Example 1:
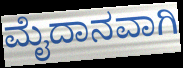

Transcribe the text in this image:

ಮೈದಾನವಾಗಿ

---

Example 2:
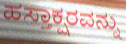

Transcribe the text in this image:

ಹಸ್ತಾಕ್ಷರವನ್ನು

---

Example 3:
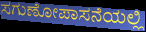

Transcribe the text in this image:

ಸಗುಣೋಪಾಸನೆಯಲ್ಲಿ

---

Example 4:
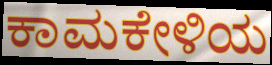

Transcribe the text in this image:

ಕಾಮಕೇಳಿಯ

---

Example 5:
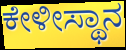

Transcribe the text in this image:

ಕೇಳೀಸ್ಥಾನ